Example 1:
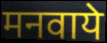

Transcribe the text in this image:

मनवाये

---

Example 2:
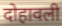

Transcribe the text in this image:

दोहावली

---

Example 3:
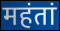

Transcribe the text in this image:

महंतां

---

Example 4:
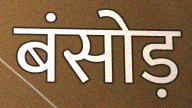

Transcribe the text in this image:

बंसोड़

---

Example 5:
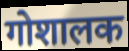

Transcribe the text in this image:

गोशालक